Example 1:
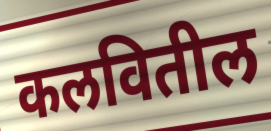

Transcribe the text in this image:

कलवितील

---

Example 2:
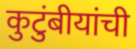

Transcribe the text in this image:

कुटुंबीयांची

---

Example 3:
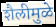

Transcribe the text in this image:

शैलीमुळे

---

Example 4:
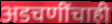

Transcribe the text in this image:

अडचणींचाही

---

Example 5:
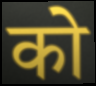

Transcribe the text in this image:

को